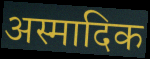
अस्मादिक